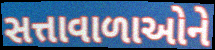
સત્તાવાળાઓને